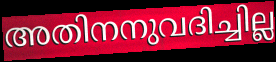
അതിനനുവദിച്ചില്ല